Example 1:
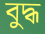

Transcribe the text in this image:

বুদ্ধ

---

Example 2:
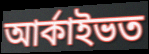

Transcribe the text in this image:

আৰ্কাইভত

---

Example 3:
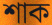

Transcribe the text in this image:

শাক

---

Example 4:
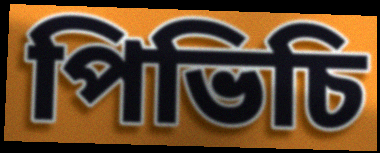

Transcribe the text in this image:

পিভিচি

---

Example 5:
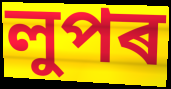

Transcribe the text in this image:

লুপৰ